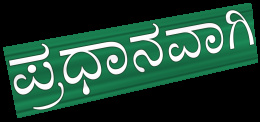
ಪ್ರಧಾನವಾಗಿ